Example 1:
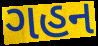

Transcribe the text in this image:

ગહન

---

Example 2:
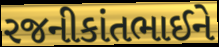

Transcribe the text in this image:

રજનીકાંતભાઈને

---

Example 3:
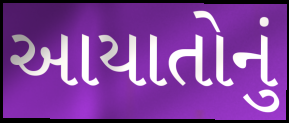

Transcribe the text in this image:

આયાતોનું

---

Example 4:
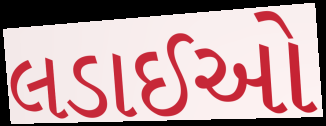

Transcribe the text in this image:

લડાઈઓ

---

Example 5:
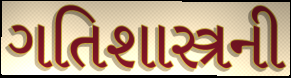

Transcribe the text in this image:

ગતિશાસ્ત્રની